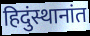
हिदुंस्थानांत